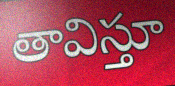
తావిస్తూ